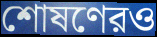
শোষণেরও